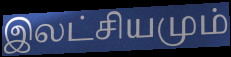
இலட்சியமும்